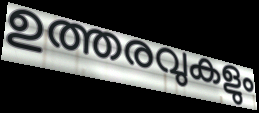
ഉത്തരവുകളും